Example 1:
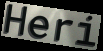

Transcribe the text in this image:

Heri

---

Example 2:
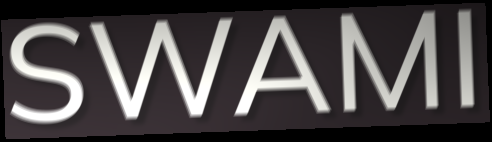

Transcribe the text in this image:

SWAMI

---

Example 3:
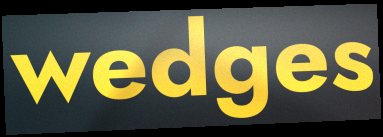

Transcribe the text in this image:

wedges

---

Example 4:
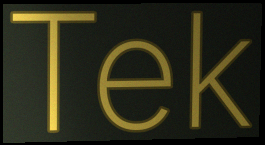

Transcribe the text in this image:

Tek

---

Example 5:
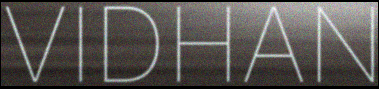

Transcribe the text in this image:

VIDHAN